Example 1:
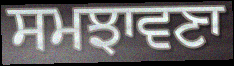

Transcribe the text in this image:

ਸਮਝਾਵਣਾ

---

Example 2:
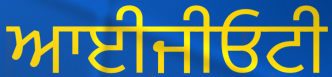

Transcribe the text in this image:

ਆਈਜੀਓਟੀ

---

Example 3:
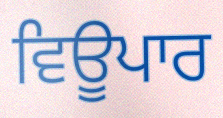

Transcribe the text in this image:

ਵਿਊਪਾਰ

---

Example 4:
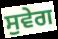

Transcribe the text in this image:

ਸੁਵੇਗ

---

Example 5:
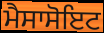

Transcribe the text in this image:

ਮੈਸਾਸੋਇਟ